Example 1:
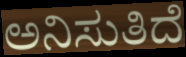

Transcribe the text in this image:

ಅನಿಸುತಿದೆ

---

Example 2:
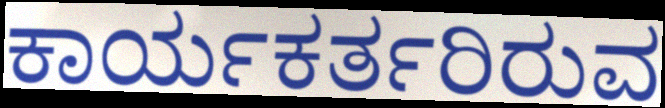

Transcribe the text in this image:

ಕಾರ್ಯಕರ್ತರಿರುವ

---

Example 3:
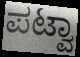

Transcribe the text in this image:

ಪಟ್ವಾ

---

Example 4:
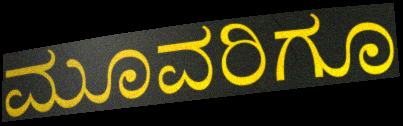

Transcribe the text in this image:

ಮೂವರಿಗೂ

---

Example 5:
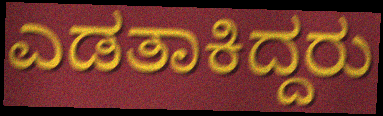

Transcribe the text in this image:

ಎಡತಾಕಿದ್ದರು